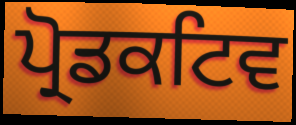
ਪ੍ਰੋਡਕਟਿਵ